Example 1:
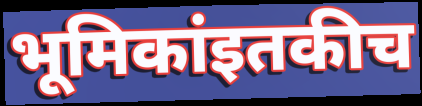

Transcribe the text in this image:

भूमिकांइतकीच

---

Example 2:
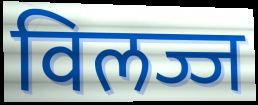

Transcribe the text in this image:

विलज्ज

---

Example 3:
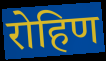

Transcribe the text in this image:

रोहिण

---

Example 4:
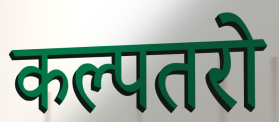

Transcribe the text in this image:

कल्पतरो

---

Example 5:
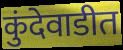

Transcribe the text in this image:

कुंदेवाडीत